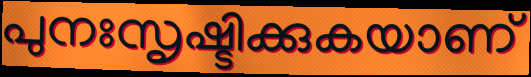
പുനഃസൃഷ്ടിക്കുകയാണ്